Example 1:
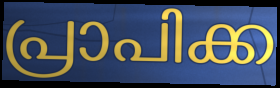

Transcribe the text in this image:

പ്രാപിക്ക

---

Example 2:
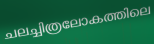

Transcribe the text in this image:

ചലച്ചിത്രലോകത്തിലെ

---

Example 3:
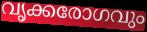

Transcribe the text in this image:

വൃക്കരോഗവും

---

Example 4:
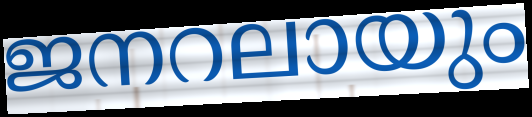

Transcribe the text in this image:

ജനറലായും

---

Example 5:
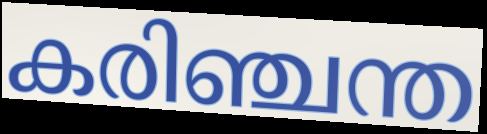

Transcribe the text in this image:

കരിഞ്ചന്ത